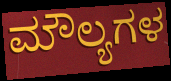
ಮೌಲ್ಯಗಳ